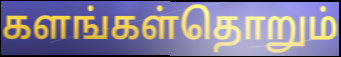
களங்கள்தொறும்